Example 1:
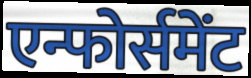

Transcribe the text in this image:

एन्फोर्समेंट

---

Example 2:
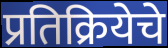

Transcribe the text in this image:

प्रतिक्रियेचे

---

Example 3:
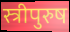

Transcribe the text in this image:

स्त्रीपुरुष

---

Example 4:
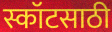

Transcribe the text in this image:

स्कॉटसाठी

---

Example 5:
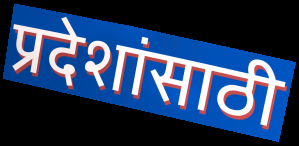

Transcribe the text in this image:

प्रदेशांसाठी